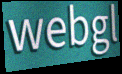
webgl